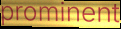
prominent